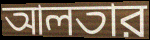
আলতার